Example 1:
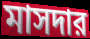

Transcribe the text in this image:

মাসদার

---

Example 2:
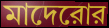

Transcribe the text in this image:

মাদেরোর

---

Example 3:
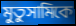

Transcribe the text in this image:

মুতুসামিকে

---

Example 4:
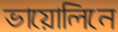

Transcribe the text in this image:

ভায়োলিনে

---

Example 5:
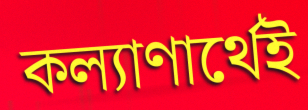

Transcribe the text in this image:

কল্যাণার্থেই